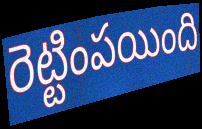
రెట్టింపయింది